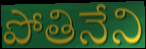
పోతినేని